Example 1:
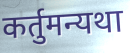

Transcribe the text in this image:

कर्तुमन्यथा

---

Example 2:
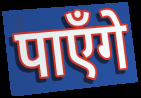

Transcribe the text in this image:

पाएँगे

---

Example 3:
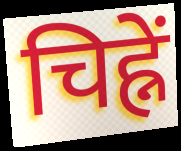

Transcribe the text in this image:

चिह्नें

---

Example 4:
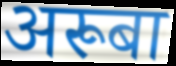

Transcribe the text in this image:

अरूबा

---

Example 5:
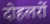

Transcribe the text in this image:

दोहलरों